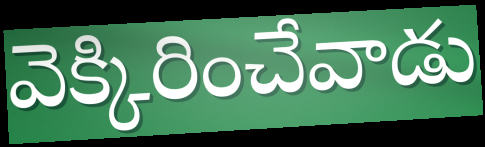
వెక్కిరించేవాడు